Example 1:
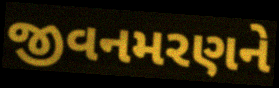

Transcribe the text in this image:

જીવનમરણને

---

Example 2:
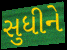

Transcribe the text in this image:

સુધીને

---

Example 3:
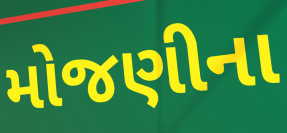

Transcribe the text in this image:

મોજણીના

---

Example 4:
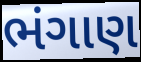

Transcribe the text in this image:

ભંગાણ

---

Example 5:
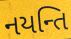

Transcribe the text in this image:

નયન્તિ